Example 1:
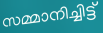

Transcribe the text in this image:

സമ്മാനിച്ചിട്ട്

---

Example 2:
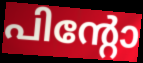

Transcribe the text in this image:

പിന്റോ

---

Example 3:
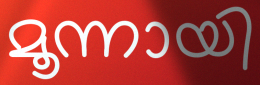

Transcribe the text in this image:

മൂന്നായി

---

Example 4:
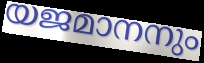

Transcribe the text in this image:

യജമാനനും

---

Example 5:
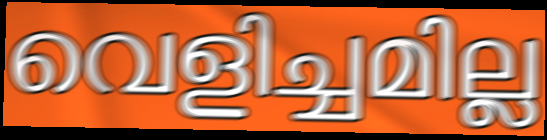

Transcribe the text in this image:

വെളിച്ചമില്ല